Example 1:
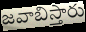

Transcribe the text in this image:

జవాబిస్తారు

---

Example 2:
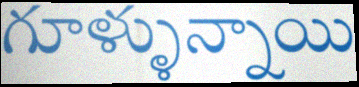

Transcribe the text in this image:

గూళ్ళున్నాయి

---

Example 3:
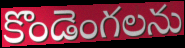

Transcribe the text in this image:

కొండెంగలను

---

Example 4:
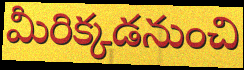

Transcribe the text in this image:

మీరిక్కడనుంచి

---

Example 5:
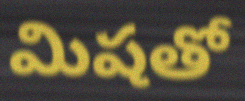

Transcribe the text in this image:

మిషతో